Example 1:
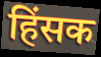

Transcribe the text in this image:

हिंसक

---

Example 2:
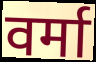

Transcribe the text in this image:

वर्मा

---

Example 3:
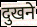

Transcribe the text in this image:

दुखने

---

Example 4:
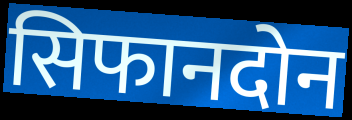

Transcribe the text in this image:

सिफानदोन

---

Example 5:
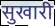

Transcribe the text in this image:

सुखारी